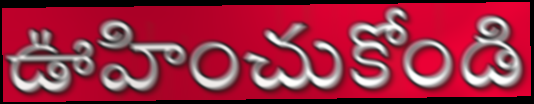
ఊహించుకోండి